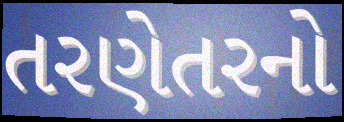
તરણેતરનો